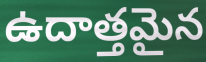
ఉదాత్తమైన